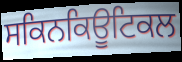
ਸਕਿਨਕਿਊਟਿਕਲ